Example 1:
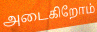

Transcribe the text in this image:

அடைகிறோம்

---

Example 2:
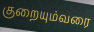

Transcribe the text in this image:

குறையும்வரை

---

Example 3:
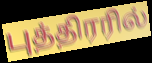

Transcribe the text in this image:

புத்திரரில்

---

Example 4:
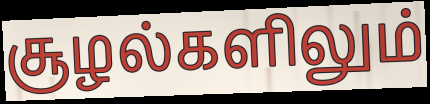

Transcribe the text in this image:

சூழல்களிலும்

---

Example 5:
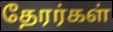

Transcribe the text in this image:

தேரர்கள்